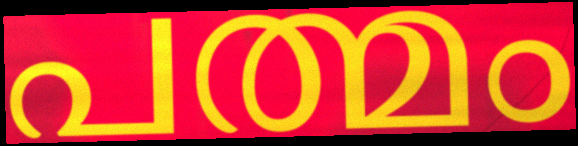
പത്മം